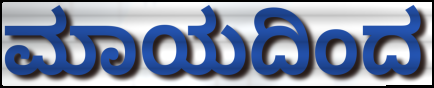
ಮಾಯದಿಂದ